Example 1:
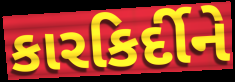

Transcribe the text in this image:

કારકિર્દીને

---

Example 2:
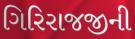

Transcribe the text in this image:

ગિરિરાજજીની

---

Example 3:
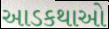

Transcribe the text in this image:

આડકથાઓ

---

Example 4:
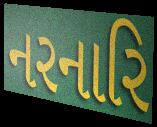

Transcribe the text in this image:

નરનારિ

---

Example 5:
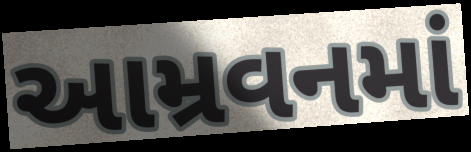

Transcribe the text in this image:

આમ્રવનમાં